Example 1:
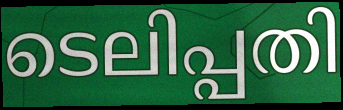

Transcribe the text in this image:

ടെലിപ്പതി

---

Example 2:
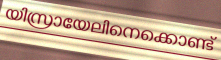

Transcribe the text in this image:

യിസ്രായേലിനെക്കൊണ്ട്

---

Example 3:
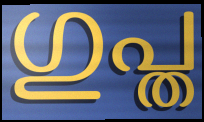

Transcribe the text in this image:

ഗുപ്ത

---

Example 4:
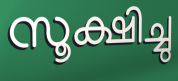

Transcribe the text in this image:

സൂക്ഷിച്ചു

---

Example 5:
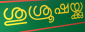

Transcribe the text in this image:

ശുശ്രൂഷയ്ക്കു